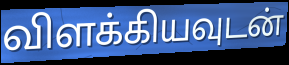
விளக்கியவுடன்